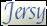
Jersy